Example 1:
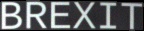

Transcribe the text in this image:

BREXIT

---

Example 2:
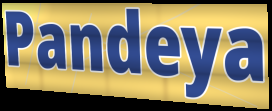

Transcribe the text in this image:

Pandeya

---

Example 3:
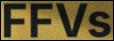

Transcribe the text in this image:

FFVs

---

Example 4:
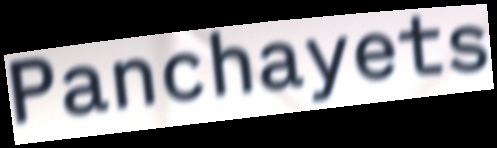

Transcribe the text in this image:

Panchayets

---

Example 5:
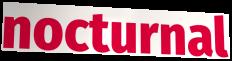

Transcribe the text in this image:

nocturnal